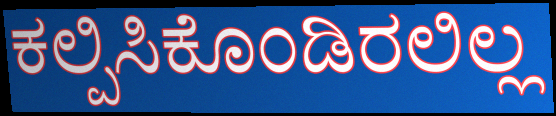
ಕಲ್ಪಿಸಿಕೊಂಡಿರಲಿಲ್ಲ